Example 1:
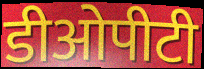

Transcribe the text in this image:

डीओपीटी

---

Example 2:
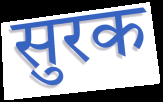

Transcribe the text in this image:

सुरक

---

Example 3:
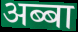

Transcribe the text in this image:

अब्बा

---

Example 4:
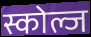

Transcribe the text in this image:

स्कोल्ज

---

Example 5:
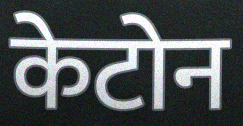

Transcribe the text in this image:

केटोन